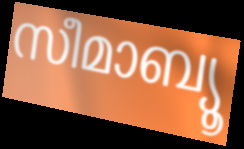
സീമാബ്യൂ